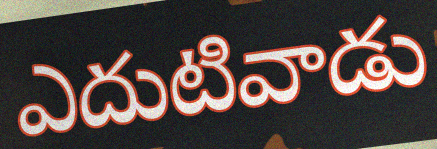
ఎదుటివాడు